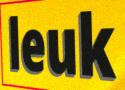
leuk